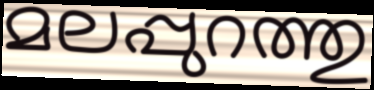
മലപ്പുറത്തു